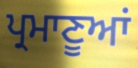
ਪ੍ਰਮਾਣੂਆਂ